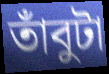
তাঁবুটা